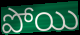
పోయి